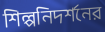
শিল্পনিদর্শনের